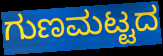
ಗುಣಮಟ್ಟದ